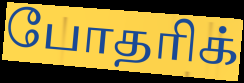
போதரிக்